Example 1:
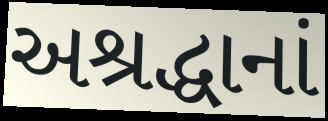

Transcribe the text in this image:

અશ્રદ્ધાનાં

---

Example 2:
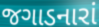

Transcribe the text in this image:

જગાડનારાં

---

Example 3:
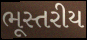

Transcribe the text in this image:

ભૂસ્તરીય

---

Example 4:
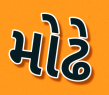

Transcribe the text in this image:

મોઢે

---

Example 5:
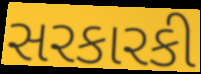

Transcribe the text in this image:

સરકારકી